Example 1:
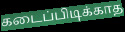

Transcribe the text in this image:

கடைப்பிடிக்காத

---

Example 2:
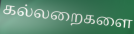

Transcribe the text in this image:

கல்லறைகளை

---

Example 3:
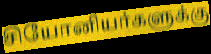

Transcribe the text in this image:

சியோனியர்களுக்கு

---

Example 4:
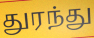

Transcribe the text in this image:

துரந்து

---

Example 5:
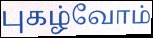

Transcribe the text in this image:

புகழ்வோம்